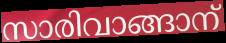
സാരിവാങ്ങാന്